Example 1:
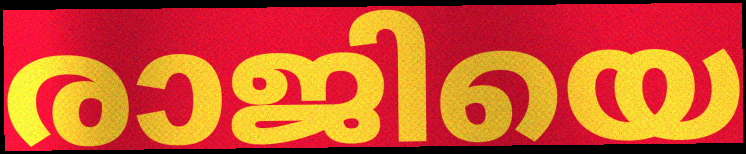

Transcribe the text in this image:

രാജിയെ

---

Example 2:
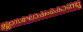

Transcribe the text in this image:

ഉല്ലാസഘോഷംകൊണ്ടു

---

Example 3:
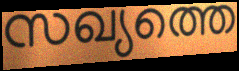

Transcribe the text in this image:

സഖ്യത്തെ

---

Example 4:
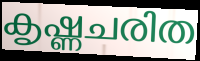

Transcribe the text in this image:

കൃഷ്ണചരിത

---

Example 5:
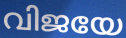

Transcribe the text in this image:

വിജയേ